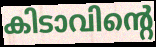
കിടാവിന്റെ